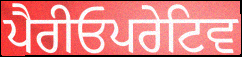
ਪੈਰੀਓਪਰੇਟਿਵ